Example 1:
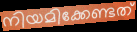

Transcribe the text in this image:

നിയമിക്കേണ്ടത്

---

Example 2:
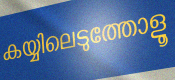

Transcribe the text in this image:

കയ്യിലെടുത്തോളൂ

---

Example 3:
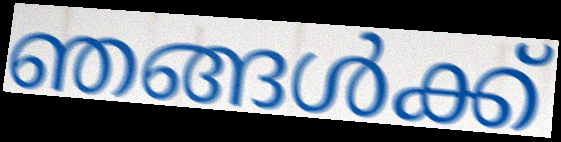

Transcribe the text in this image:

ഞങ്ങൾക്ക്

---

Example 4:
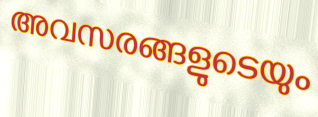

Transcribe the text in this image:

അവസരങ്ങളുടെയും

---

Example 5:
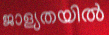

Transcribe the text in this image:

ജാള്യതയിൽ